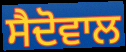
ਸੈਦੋਵਾਲ